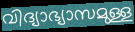
വിദ്യാഭ്യാസമുള്ള